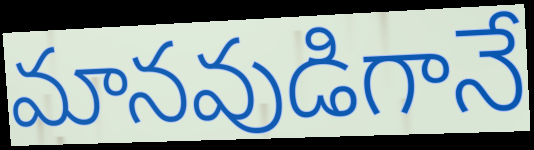
మానవుడిగానే